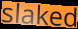
slaked